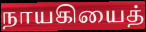
நாயகியைத்